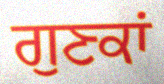
ਗੁਣਕਾਂ